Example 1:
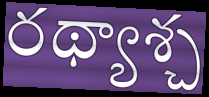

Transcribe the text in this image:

రథ్యాశ్చ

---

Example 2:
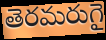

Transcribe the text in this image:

తెరమరుగై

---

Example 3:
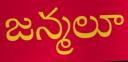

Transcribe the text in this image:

జన్మలూ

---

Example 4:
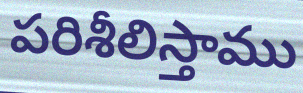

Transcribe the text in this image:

పరిశీలిస్తాము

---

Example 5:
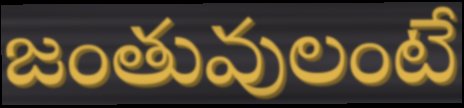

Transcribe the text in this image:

జంతువులంటే